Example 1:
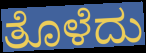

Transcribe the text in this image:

ತೊಳೆದು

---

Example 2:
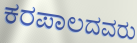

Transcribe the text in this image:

ಕರಪಾಲದವರು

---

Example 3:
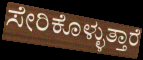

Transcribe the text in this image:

ಸೇರಿಕೊಳ್ಳುತ್ತಾರೆ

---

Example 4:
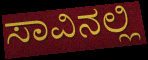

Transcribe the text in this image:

ಸಾವಿನಲ್ಲಿ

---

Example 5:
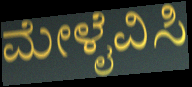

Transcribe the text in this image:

ಮೇಳೈವಿಸಿ